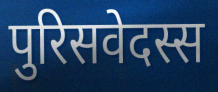
पुरिसवेदस्स